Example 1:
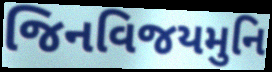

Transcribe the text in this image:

જિનવિજયમુનિ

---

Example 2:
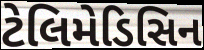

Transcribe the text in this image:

ટેલિમેડિસિન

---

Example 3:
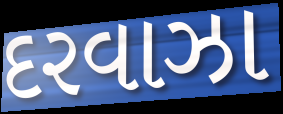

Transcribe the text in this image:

દરવાઝા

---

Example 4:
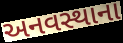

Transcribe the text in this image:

અનવસ્થાના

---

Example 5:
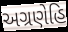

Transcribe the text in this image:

અગ્રણેહિ